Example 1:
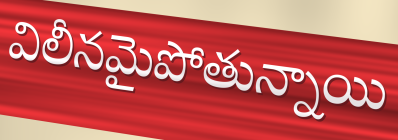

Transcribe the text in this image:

విలీనమైపోతున్నాయి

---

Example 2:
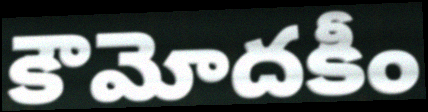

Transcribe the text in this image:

కౌమోదకీం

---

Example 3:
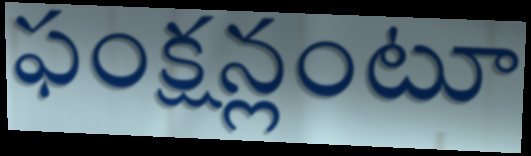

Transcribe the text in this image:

ఫంక్షన్లంటూ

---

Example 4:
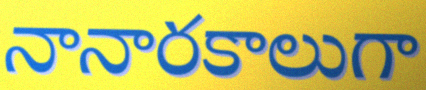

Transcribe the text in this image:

నానారకాలుగా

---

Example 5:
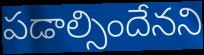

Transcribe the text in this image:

పడాల్సిందేనని